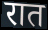
रात